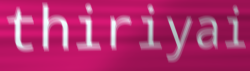
thiriyai